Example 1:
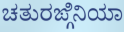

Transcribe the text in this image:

ಚತುರಙ್ಗಿನಿಯಾ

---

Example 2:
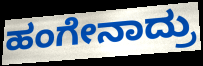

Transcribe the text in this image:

ಹಂಗೇನಾದ್ರು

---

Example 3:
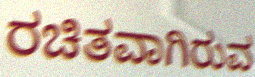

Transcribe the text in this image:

ರಚಿತವಾಗಿರುವ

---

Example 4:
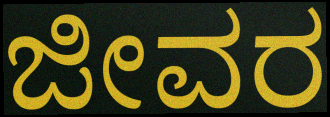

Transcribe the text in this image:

ಜೀವರ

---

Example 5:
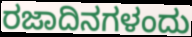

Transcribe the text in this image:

ರಜಾದಿನಗಳಂದು